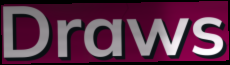
Draws